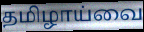
தமிழாய்வை